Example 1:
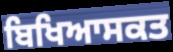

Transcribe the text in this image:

ਬਿਖਿਆਸਕਤ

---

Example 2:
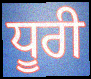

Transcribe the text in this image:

ਧੂਰੀ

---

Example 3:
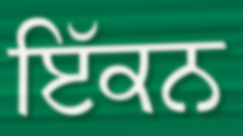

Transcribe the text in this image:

ਇੱਕਨ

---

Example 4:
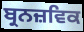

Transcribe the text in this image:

ਬ੍ਰਨਜ਼ਵਿਕ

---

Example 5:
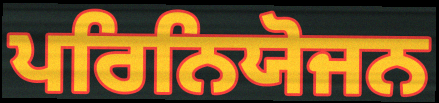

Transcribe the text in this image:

ਪਰਿਨਿਯੋਜਨ